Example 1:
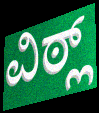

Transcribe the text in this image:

ವಿಠ್ಲ್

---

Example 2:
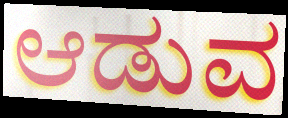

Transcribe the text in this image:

ಆಡುವ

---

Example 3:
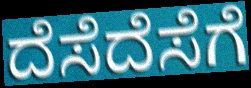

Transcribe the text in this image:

ದೆಸೆದೆಸೆಗೆ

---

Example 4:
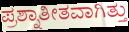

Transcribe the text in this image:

ಪ್ರಶ್ನಾತೀತವಾಗಿತ್ತು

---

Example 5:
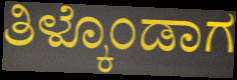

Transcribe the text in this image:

ತಿಳ್ಕೊಂಡಾಗ